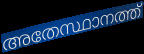
അതേസ്ഥാനത്ത്